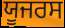
ਯੂਜਰਸ